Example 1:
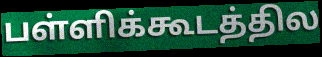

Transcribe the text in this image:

பள்ளிக்கூடத்தில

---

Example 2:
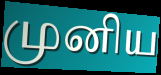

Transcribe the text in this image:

முனிய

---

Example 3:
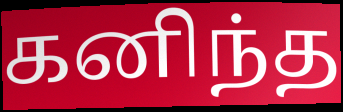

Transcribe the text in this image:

கனிந்த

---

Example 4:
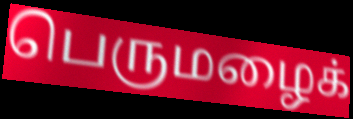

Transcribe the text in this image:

பெருமழைக்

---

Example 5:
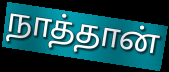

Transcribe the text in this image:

நாத்தான்